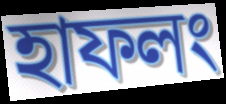
হাফলং